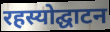
रहस्योद्घाटन